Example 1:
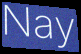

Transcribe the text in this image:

Nay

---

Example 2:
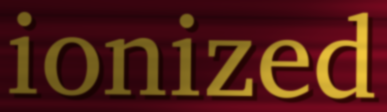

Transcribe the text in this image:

ionized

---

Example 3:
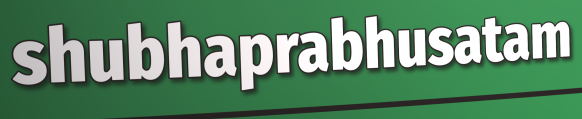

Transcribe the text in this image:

shubhaprabhusatam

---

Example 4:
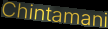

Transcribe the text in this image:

Chintamani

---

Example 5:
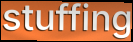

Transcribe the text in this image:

stuffing